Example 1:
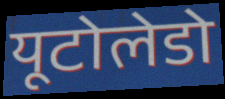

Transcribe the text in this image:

यूटोलेडो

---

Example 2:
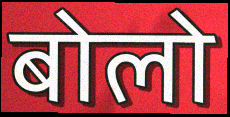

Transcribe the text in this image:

बोलो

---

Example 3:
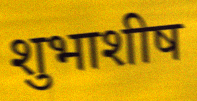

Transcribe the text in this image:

शुभाशीष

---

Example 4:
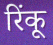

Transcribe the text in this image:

रिंकू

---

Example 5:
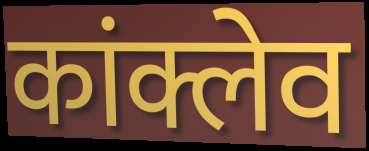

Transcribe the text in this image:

कांक्लेव